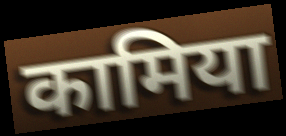
कामिया